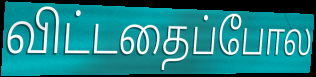
விட்டதைப்போல